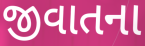
જીવાતના